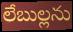
లేబుల్లను